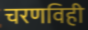
चरणविही